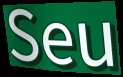
Seu